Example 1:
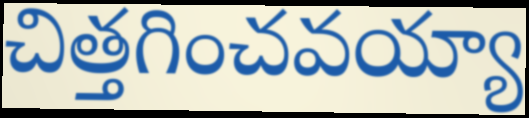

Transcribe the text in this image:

చిత్తగించవయ్యా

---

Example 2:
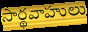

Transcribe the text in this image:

సార్థవాహులు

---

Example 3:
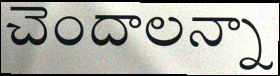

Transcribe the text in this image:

చెందాలన్నా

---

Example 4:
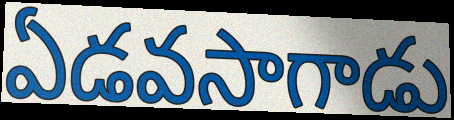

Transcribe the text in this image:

ఏడవసాగాడు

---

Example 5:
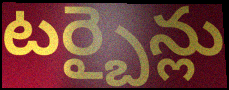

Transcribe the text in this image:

టర్బైన్లు